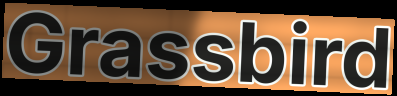
Grassbird